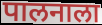
पालनाला